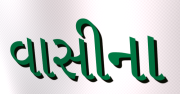
વાસીના